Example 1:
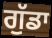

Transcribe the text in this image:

ਗੁੱਡਾ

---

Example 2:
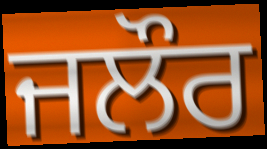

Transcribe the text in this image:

ਜਲੌਰ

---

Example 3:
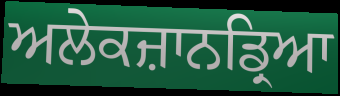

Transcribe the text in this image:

ਅਲੇਕਜ਼ਾਨਡ੍ਰਿਆ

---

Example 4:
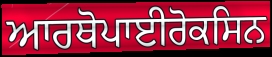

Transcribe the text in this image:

ਆਰਥੋਪਾਈਰੋਕਸਿਨ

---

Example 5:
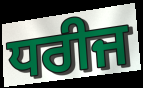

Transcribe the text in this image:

ਧਰੀਜ